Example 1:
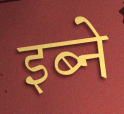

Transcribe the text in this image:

इब्ने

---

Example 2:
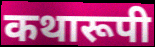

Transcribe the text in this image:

कथारूपी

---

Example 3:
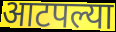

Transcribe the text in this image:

आटपल्या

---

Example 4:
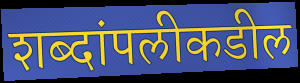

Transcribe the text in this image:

शब्दांपलीकडील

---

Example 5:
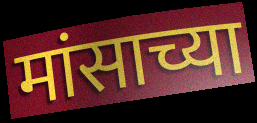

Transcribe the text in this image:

मांसाच्या